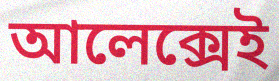
আলেক্সেই